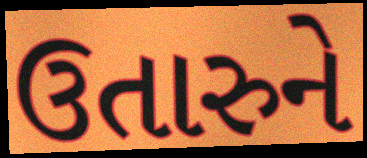
ઉતારુને